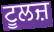
ਟੂਲਜ਼